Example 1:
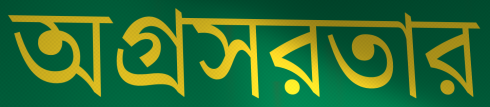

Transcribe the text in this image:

অগ্রসরতার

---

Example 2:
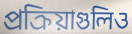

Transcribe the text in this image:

প্রক্রিয়াগুলিও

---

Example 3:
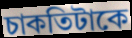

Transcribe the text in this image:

চাকতিটাকে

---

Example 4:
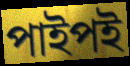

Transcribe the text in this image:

পাইপই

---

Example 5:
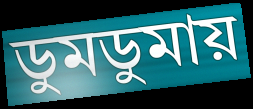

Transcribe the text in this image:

ডুমডুমায়